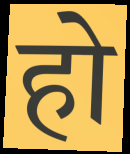
हो